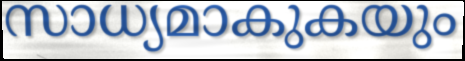
സാധ്യമാകുകയും